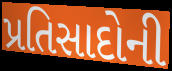
પ્રતિસાદોની